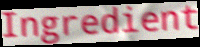
Ingredient